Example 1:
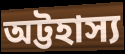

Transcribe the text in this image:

অট্টহাস্য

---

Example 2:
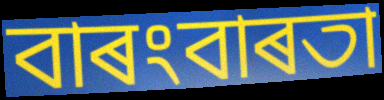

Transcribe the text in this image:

বাৰংবাৰতা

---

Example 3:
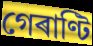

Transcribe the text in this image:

গেৰাণ্টি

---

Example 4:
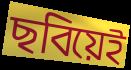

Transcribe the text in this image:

ছবিয়েই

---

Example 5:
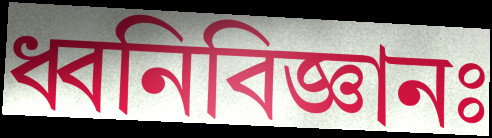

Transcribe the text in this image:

ধ্বনিবিজ্ঞানঃ